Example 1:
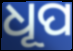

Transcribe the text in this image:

ଧୂପ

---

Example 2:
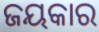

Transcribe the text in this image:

ଜୟକାର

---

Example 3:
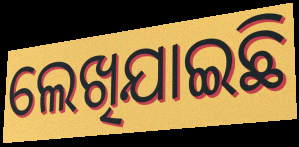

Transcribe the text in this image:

ଲେଖିଯାଇଛି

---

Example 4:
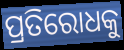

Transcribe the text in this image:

ପ୍ରତିରୋଧକୁ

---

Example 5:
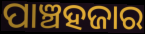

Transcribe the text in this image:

ପାଞ୍ଚହଜାର